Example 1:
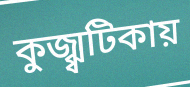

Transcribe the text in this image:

কুজ্ঝ্বটিকায়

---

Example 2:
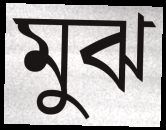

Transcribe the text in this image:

মুঝ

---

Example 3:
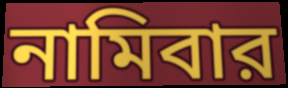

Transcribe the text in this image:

নামিবার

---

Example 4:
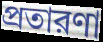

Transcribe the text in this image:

প্রতারণা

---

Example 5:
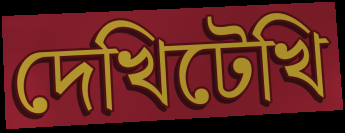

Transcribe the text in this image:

দেখিটেখি